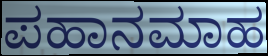
ಪಹಾನಮಾಹ